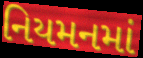
નિયમનમાં